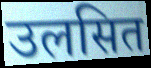
उलसित